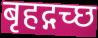
बृहद्गच्छ